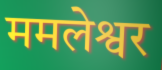
ममलेश्वर